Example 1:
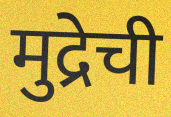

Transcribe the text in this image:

मुद्रेची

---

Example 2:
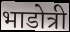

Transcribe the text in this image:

भाडोत्री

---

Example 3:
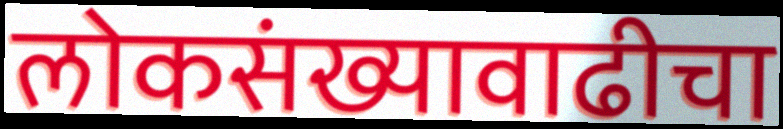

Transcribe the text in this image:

लोकसंख्यावाढीचा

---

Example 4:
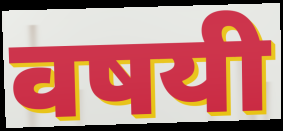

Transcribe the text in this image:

वषयी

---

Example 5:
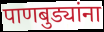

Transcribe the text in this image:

पाणबुड्यांना